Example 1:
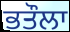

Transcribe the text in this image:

ਭਤੌਲਾ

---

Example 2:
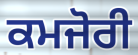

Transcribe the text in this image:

ਕਮਜੋਰੀ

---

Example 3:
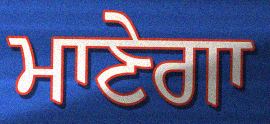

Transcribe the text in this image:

ਮਾਣੇਗਾ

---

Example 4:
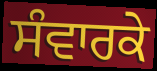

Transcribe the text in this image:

ਸੰਵਾਰਕੇ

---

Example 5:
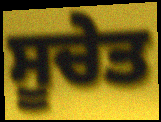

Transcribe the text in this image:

ਸੂਚੇਤ